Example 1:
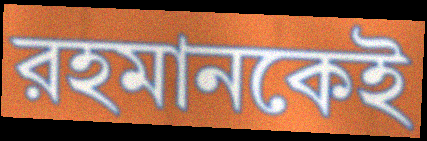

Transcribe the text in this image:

রহমানকেই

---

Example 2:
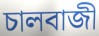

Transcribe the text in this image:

চালবাজী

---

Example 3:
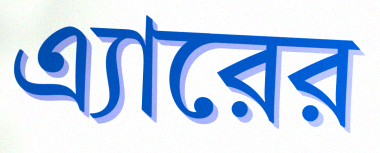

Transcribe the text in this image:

এ্যারের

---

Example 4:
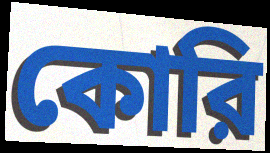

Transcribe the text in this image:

কোরি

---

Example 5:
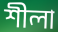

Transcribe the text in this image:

শীলা